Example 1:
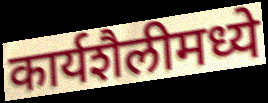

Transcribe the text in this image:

कार्यशैलीमध्ये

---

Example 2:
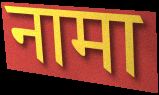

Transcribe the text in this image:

नामा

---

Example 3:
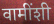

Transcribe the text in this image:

वामींशी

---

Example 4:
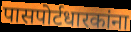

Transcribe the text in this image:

पासपोर्टधारकांना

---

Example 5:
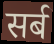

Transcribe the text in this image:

सर्ब